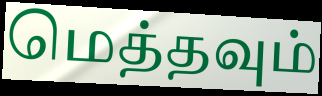
மெத்தவும்